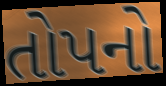
તોપનો